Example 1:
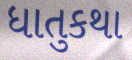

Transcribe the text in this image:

ધાતુકથા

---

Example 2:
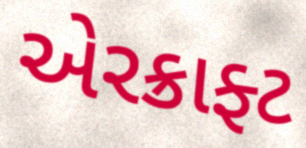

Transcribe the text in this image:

એરક્રાફ્ટ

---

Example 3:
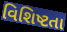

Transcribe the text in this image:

વિશિષ્ટતા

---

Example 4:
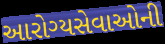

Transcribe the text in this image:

આરોગ્યસેવાઓની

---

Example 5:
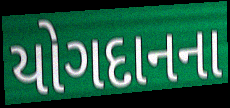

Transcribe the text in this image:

યોગદાનના